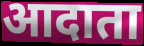
आदाता